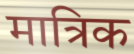
मात्रिक